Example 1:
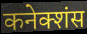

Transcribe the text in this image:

कनेक्शंस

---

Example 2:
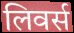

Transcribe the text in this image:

लिवर्स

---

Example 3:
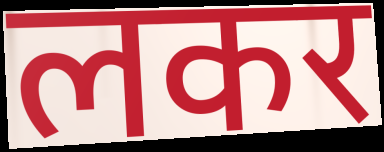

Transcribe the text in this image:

लकर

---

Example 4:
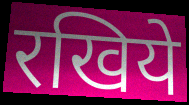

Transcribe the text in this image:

रखिये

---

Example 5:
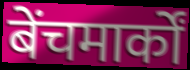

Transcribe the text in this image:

बेंचमार्कों